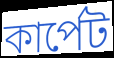
কাৰ্পেট